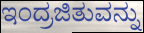
ಇಂದ್ರಜಿತುವನ್ನು